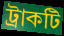
ট্রাকটি